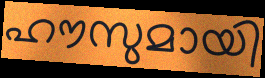
ഹൗസുമായി